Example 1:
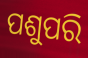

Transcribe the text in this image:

ପଶୁପରି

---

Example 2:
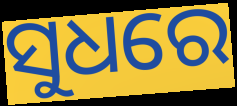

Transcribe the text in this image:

ସୁଧରେ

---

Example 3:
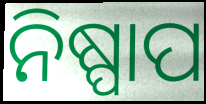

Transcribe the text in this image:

ନିଷ୍ପାପ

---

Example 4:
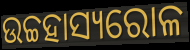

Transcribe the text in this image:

ଉଚ୍ଚହାସ୍ୟରୋଳ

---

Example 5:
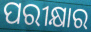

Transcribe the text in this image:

ପରୀକ୍ଷାର